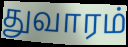
துவாரம்